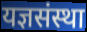
यज्ञसंस्था